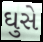
ઘુસે